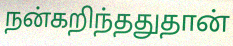
நன்கறிந்ததுதான்